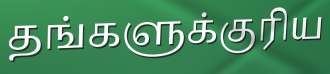
தங்களுக்குரிய